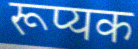
रूप्यक